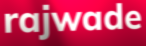
rajwade